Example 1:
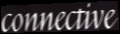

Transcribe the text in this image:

connective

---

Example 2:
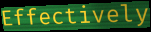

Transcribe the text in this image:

Effectively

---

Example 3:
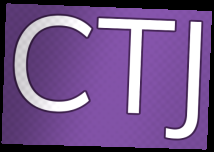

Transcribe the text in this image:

CTJ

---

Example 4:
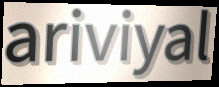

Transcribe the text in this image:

ariviyal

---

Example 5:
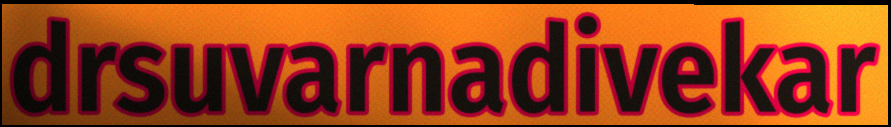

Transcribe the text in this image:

drsuvarnadivekar